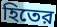
হিতের